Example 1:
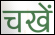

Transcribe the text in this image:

चखें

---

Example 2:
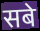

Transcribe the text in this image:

सबे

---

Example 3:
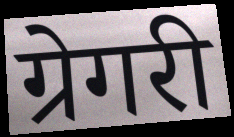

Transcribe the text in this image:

ग्रेगरी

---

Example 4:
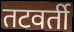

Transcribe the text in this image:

तटवर्ती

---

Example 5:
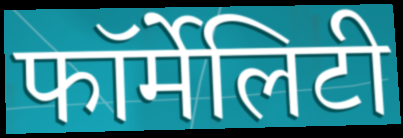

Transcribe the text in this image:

फॉर्मेलिटी